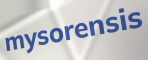
mysorensis